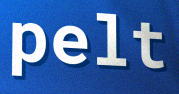
pelt